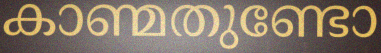
കാണ്മതുണ്ടോ